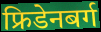
फ्रिडेनबर्ग